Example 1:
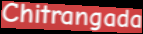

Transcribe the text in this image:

Chitrangada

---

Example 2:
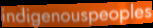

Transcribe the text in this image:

indigenouspeoples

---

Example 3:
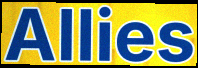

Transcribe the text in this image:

Allies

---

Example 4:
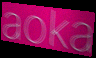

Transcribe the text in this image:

aoka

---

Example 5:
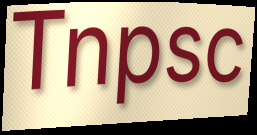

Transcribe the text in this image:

Tnpsc